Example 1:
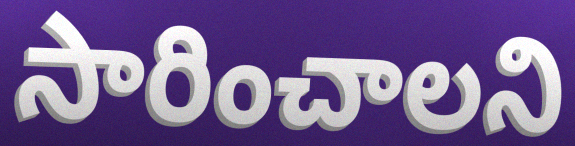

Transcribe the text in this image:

సారించాలని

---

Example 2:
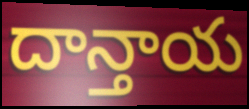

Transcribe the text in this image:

దాన్తాయ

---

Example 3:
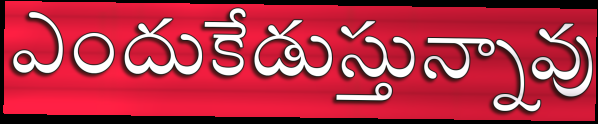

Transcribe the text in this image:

ఎందుకేడుస్తున్నావు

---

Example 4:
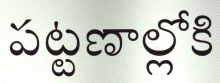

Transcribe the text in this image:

పట్టణాల్లోకి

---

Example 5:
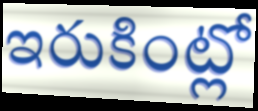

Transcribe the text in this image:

ఇరుకింట్లో